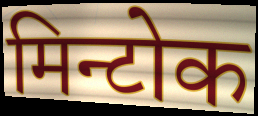
मिन्टोक